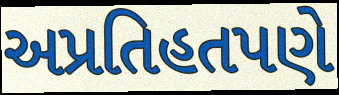
અપ્રતિહતપણે